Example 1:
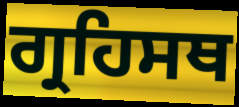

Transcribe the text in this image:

ਗ੍ਰਹਿਸਥ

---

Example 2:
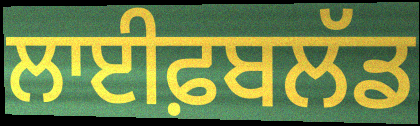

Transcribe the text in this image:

ਲਾਈਫ਼ਬਲੱਡ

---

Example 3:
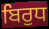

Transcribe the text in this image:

ਬਿਰੁਧ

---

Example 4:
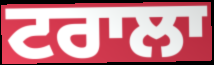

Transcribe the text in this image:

ਟਰਾਲਾ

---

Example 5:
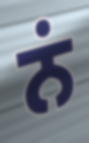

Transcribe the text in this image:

ਨਂ